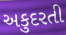
અકુદરતી